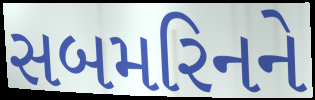
સબમરિનને